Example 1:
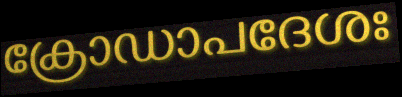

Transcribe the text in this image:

ക്രോഡാപദേശഃ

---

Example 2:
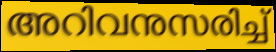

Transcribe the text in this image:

അറിവനുസരിച്ച്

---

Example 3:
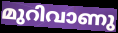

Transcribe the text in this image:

മുറിവാണു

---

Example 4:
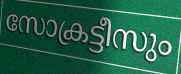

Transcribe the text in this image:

സോക്രട്ടീസും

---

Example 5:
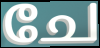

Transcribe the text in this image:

ചേ